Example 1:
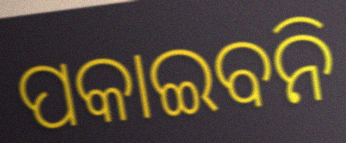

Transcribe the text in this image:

ପକାଇବନି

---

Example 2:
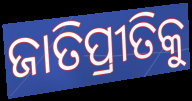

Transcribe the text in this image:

ଜାତିପ୍ରୀତିକୁ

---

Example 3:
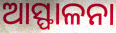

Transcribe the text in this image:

ଆସ୍ଫାଳନା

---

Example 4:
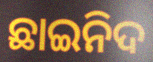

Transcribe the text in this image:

ଛାଇନିଦ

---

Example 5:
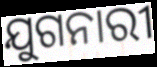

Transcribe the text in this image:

ଯୁଗନାରୀ